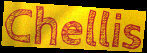
Chellis